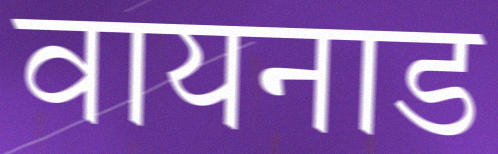
वायनाड